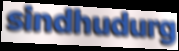
sindhudurg